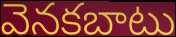
వెనకబాటు